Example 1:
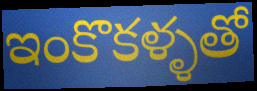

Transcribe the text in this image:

ఇంకొకళ్ళతో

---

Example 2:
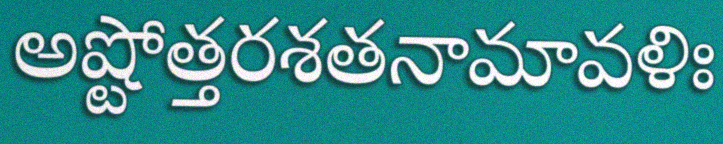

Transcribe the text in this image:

అష్టోత్తరశతనామావళిః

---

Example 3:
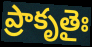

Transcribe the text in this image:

ప్రాకృతైః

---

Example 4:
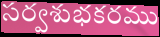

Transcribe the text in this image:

సర్వశుభకరము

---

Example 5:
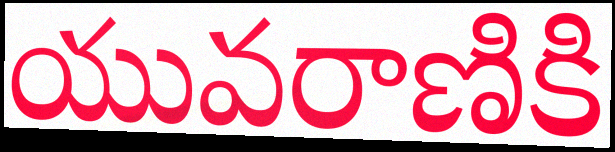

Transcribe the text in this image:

యువరాణికి